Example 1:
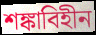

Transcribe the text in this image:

শঙ্কাবিহীন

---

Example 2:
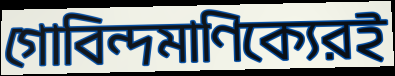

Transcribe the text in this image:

গোবিন্দমাণিক্যেরই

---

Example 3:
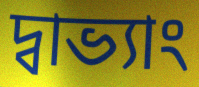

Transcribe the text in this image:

দ্বাভ্যাং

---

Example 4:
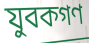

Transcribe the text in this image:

যুবকগণ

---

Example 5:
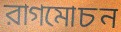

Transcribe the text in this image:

রাগমোচন